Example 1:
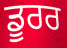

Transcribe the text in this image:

ਡੂਰਰ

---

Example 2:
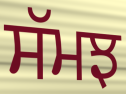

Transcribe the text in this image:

ਸੱਮਝ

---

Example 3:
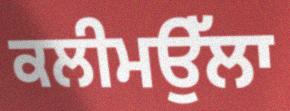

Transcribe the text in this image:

ਕਲੀਮਉੱਲਾ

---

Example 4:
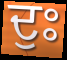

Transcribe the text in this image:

ਦੁਃ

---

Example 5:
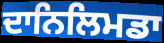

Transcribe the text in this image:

ਦਾਨਿਲਿਮਡਾ